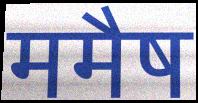
ममैष